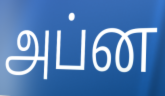
அப்ன